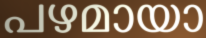
പഴമായാ